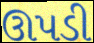
ઊપડી